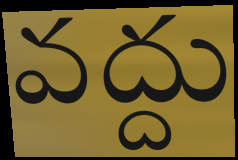
వద్దు